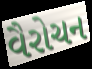
વૈરોચન